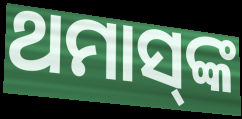
ଥମାସ୍‌ଙ୍କ